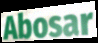
Abosar